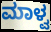
ಮಾಳ್ವ